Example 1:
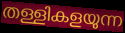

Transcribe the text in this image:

തള്ളികളയുന്ന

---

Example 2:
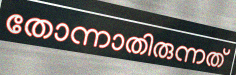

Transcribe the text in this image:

തോന്നാതിരുന്നത്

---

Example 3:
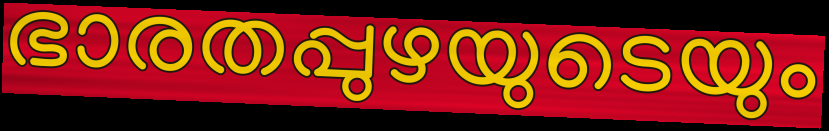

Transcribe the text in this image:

ഭാരതപ്പുഴയുടെയും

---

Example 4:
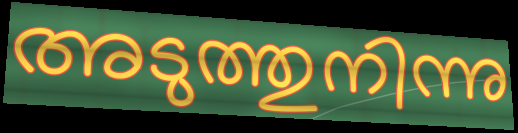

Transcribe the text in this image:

അടുത്തുനിന്നു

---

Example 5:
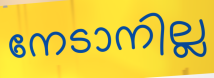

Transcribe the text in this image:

നേടാനില്ല